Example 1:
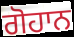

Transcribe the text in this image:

ਗੋਹਾਨ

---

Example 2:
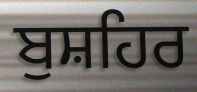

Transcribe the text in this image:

ਬੁਸ਼ਹਿਰ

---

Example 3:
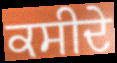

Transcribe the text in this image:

ਕਸੀਦੇ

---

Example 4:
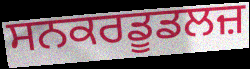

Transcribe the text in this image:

ਸਨਕਰਡੂਡਲਜ਼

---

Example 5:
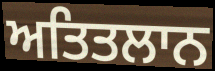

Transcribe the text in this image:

ਅਤਿਤਲਾਨ